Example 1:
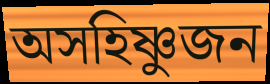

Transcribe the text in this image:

অসহিষ্ণুজন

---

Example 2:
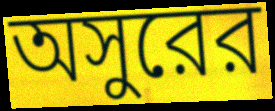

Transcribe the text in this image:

অসুরের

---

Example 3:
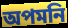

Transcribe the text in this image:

অপমনি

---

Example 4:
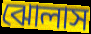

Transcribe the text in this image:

ঝোলাস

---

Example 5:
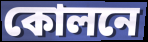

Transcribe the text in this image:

কোলনে